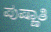
ಪುಷ್ಣಾತಿ